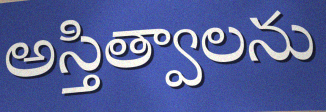
అస్తిత్వాలను